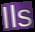
Ils